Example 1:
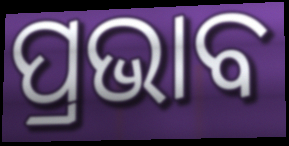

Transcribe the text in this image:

ପ୍ରଭାବ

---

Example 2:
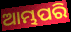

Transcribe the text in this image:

ଆମ୍ଭପରି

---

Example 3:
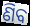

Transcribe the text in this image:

ଣିବ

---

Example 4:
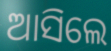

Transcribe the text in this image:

ଆସିଲେ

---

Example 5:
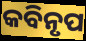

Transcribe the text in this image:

କବିନୃପ